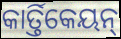
କାର୍ତ୍ତିକେୟନ୍